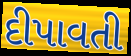
દીપાવતી